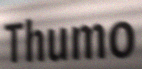
Thumo